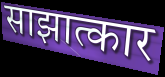
साझात्कार